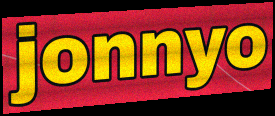
jonnyo